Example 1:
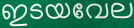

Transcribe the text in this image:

ഇടയവേല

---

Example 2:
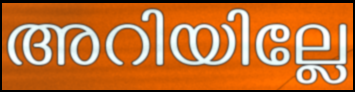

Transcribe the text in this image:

അറിയില്ലേ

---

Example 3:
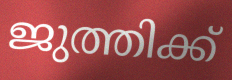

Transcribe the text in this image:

ജുത്തിക്ക്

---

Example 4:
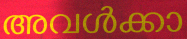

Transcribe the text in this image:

അവൾക്കാ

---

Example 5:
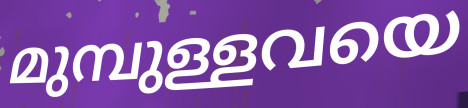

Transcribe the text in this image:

മുമ്പുള്ളവയെ